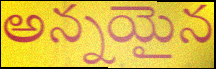
అన్నయైన